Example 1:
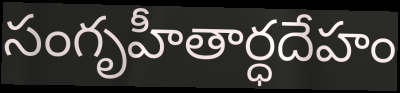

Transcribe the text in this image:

సంగృహీతార్ధదేహం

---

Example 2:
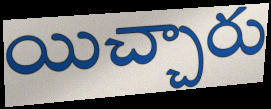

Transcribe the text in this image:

యిచ్చారు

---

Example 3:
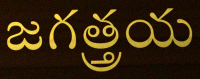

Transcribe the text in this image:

జగత్త్రయ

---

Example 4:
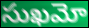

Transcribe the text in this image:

సుఖమో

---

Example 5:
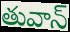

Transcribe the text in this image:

తువాన్